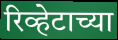
रिव्हेटाच्या